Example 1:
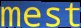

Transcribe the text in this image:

mest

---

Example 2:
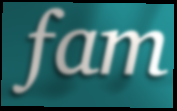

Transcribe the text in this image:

fam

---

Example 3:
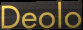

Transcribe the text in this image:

Deolo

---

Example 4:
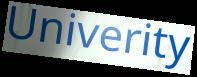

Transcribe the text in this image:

Univerity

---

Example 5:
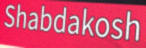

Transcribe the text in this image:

Shabdakosh